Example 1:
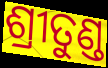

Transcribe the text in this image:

ଶ୍ରୀତୁଣ୍ଡ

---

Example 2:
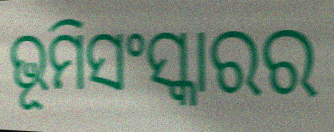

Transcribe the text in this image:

ଭୂମିସଂସ୍କାରର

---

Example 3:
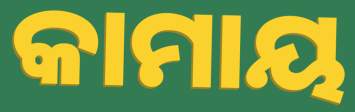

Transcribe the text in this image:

କାମାୟ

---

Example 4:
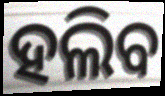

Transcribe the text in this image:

ହଲିବ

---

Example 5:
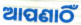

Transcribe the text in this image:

ଆପଣାଠିଁ